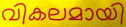
വികലമായി